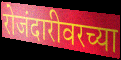
रोजंदारीवरच्या